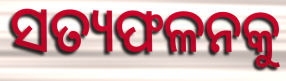
ସତ୍ୟଫଳନକୁ